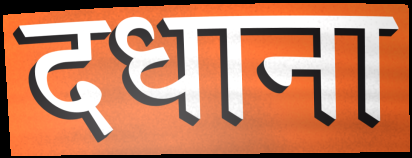
दधाना